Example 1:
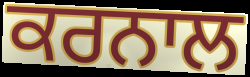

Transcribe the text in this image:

ਕਰਨਾਲ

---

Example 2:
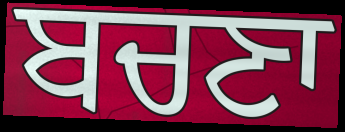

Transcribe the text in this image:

ਬਚਣਾ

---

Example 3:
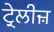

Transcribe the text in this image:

ਟ੍ਰੇਲੀਜ਼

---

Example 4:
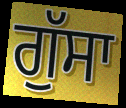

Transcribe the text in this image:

ਗੁੱਸਾ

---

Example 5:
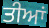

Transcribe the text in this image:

ਤੀਆਂ